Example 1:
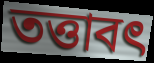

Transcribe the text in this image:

তত্তাবৎ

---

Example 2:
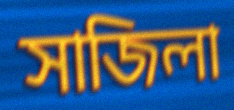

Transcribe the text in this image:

সাজিলা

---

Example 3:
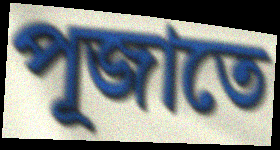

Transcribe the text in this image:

পূজাতে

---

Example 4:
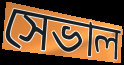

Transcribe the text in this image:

সেভাল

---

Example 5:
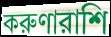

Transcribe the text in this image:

করুণারাশি